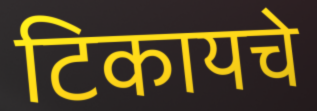
टिकायचे